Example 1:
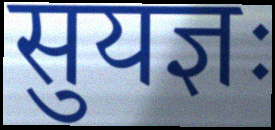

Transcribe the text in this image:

सुयज्ञः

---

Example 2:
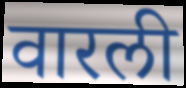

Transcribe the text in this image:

वारली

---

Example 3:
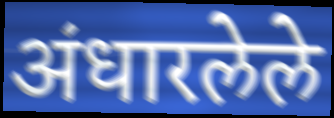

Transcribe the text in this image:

अंधारलेले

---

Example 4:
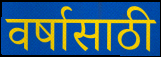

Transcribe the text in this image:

वर्षासाठी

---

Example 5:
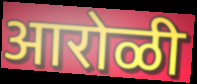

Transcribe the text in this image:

आरोळी